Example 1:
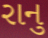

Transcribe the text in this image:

રાનુ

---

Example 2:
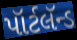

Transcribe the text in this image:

પૉર્ટલૅન્ડ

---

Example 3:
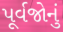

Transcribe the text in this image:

પૂર્વજોનું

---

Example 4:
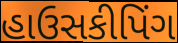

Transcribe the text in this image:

હાઉસકીપિંગ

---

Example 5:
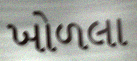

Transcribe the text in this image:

ખોળલા